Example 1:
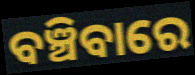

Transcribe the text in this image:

ବଞ୍ଚିବାରେ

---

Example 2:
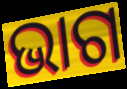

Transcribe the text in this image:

ଭାଗ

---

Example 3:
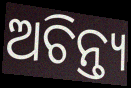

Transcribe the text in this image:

ଅଚିନ୍ତ୍ଯ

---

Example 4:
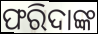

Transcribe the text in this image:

ଫରିଦାଙ୍କ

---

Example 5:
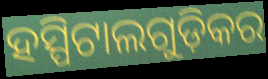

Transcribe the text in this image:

ହସ୍ପିଟାଲଗୁଡ଼ିକର